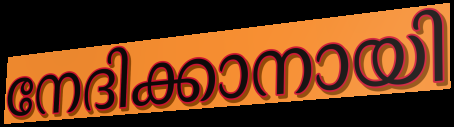
നേദിക്കാനായി